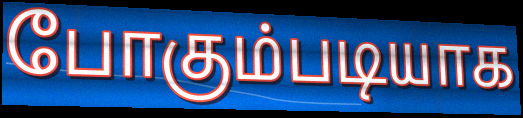
போகும்படியாக